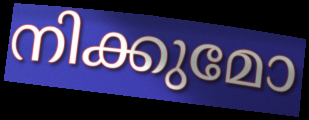
നിക്കുമോ